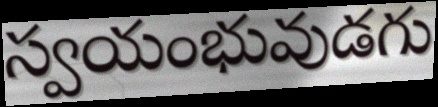
స్వయంభువుడగు